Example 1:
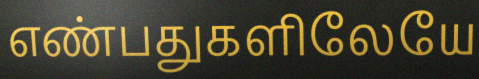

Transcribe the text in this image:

எண்பதுகளிலேயே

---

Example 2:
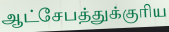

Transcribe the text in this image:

ஆட்சேபத்துக்குரிய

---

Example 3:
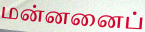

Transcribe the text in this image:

மன்னனைப்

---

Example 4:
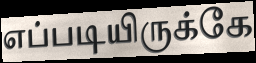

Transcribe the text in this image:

எப்படியிருக்கே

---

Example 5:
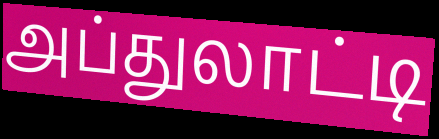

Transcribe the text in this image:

அப்துலாட்டி